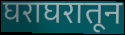
घराघरातून